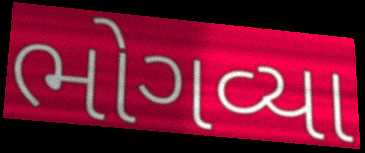
ભોગવ્યા